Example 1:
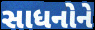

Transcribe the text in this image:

સાધનોને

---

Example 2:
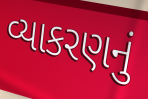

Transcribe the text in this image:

વ્યાકરણનું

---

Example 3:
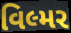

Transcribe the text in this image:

વિલ્મર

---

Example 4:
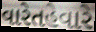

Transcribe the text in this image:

વારેતહેવારે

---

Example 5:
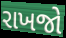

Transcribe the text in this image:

રાખજો